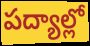
పద్యాల్లో